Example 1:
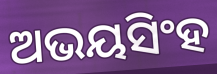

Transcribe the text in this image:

ଅଭୟସିଂହ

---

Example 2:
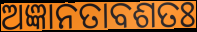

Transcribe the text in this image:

ଅଜ୍ଞାନତାବଶତଃ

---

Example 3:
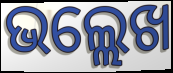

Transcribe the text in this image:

ଭଲ୍ଲେଖ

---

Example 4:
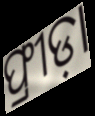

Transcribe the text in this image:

ଫ୍ରୀଡ଼ା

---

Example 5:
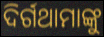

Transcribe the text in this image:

ଦିର୍ଗଥାମାଙ୍କୁ